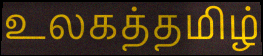
உலகத்தமிழ்